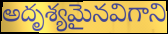
అదృశ్యమైనవిగాని